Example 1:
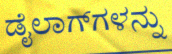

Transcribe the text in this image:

ಡೈಲಾಗ್‌ಗಳನ್ನು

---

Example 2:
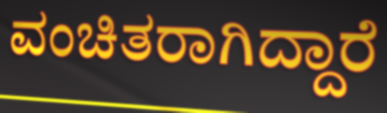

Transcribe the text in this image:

ವಂಚಿತರಾಗಿದ್ದಾರೆ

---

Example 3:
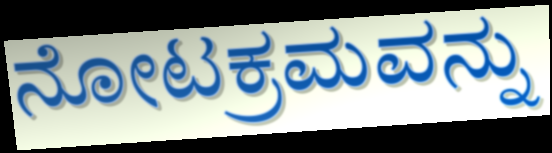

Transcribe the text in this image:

ನೋಟಕ್ರಮವನ್ನು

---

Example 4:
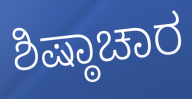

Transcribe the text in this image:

ಶಿಷ್ಠಾಚಾರ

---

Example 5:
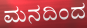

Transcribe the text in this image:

ಮನದಿಂದ